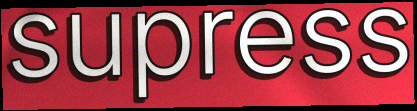
supress